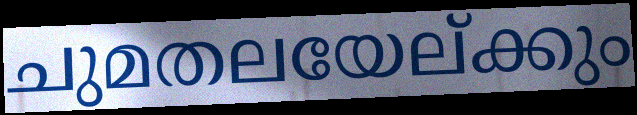
ചുമതലയേല്ക്കും